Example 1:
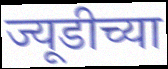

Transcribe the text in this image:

ज्यूडीच्या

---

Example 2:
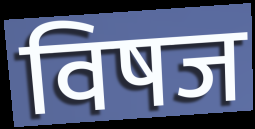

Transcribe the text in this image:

विषज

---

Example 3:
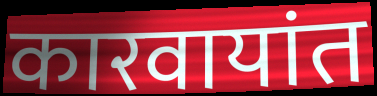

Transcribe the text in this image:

कारवायांत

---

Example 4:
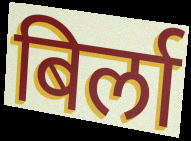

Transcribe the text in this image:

बिर्ला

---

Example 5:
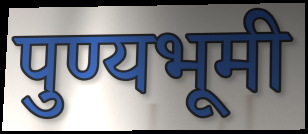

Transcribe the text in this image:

पुण्यभूमी